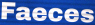
Faeces